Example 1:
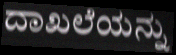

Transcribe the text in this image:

ದಾಖಲೆಯನ್ನು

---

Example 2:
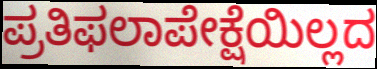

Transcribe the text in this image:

ಪ್ರತಿಫಲಾಪೇಕ್ಷೆಯಿಲ್ಲದ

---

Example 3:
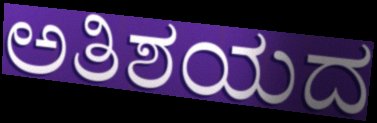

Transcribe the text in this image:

ಅತಿಶಯದ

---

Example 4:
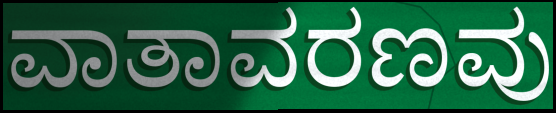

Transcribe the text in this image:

ವಾತಾವರಣವು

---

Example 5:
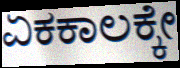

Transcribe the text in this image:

ಏಕಕಾಲಕ್ಕೇ